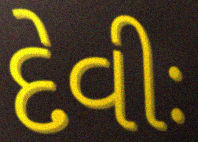
દેવીઃ